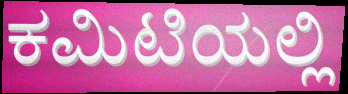
ಕಮಿಟಿಯಲ್ಲಿ